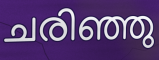
ചരിഞ്ഞു